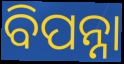
ବିପନ୍ନା